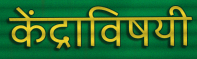
केंद्राविषयी